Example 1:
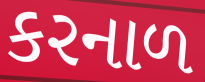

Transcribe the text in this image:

કરનાળ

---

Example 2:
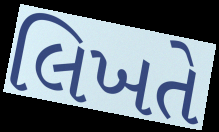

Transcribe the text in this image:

લિખતે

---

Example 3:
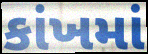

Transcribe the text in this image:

કાંખમાં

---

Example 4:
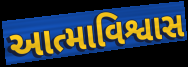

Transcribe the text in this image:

આત્માવિશ્વાસ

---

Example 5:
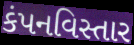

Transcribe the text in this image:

કંપનવિસ્તાર